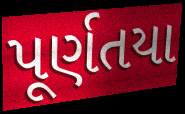
પૂર્ણતયા